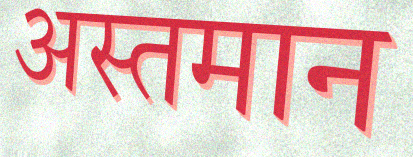
अस्तमान